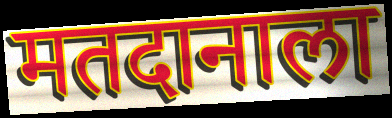
मतदानाला